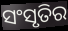
ସଂସୃତିର